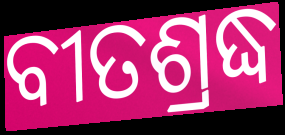
ବୀତଶ୍ରଦ୍ଧ